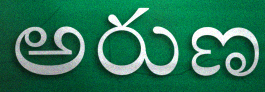
అరుణ